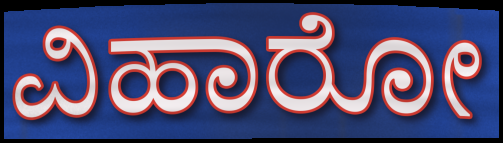
ವಿಹಾರೋ